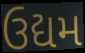
ઉદ્યમ